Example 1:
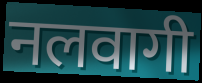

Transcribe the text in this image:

नलवागी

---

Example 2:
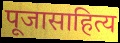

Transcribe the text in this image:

पूजासाहित्य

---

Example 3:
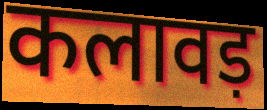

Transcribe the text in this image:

कलावड़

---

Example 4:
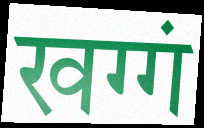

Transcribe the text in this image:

खग्गं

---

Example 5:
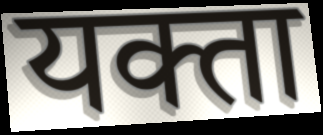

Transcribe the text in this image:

यक्ता